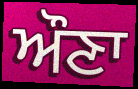
ਔਣਾ